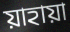
য়াহায়া